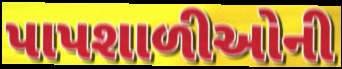
પાપશાળીઓની